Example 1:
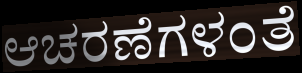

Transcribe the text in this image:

ಆಚರಣೆಗಳಂತೆ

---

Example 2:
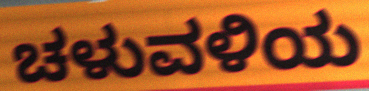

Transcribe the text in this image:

ಚಳುವಳಿಯ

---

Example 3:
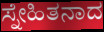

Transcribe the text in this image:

ಸ್ನೇಹಿತನಾದ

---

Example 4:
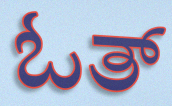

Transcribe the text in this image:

ಓತ್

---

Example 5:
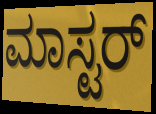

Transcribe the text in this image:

ಮಾಸ್ಟರ್